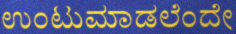
ಉಂಟುಮಾಡಲೆಂದೇ